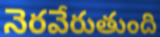
నెరవేరుతుంది